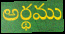
అర్థము